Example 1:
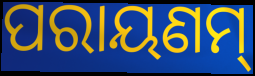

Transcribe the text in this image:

ପରାୟଣମ୍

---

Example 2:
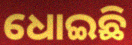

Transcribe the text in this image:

ଧୋଇଛି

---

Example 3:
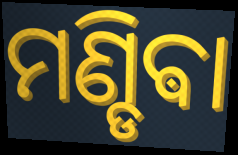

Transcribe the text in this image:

ମଣ୍ଡିଵା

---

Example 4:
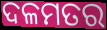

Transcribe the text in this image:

ଦଳମତର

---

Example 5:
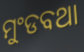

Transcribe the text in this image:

ମୁଂଡବଥା